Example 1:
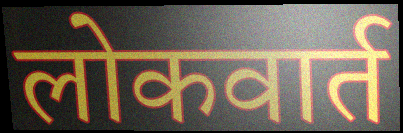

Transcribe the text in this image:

लोकवार्त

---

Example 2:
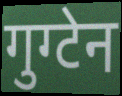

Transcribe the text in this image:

गुग्टेन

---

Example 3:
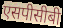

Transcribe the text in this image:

एसपीसीबी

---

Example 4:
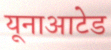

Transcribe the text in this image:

यूनाआटेड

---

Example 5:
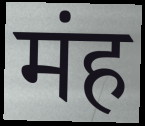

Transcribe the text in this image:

मंह